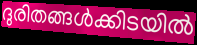
ദുരിതങ്ങൾക്കിടയിൽ